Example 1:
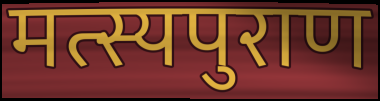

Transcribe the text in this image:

मत्स्यपुराण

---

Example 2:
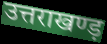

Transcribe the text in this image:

उत्तराखण्ड़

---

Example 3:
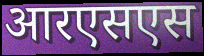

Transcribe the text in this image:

आरएसएस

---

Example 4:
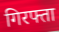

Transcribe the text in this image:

गिरफ्ता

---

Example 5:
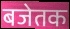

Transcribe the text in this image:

बजेतक